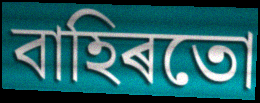
বাহিৰতো